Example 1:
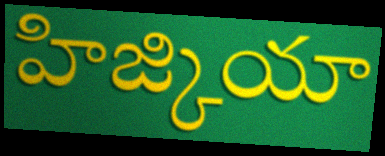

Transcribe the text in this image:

హిజ్కియా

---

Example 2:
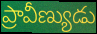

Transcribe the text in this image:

ప్రావీణ్యుడు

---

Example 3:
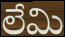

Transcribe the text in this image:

లేమి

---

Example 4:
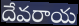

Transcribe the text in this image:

దేవరాయ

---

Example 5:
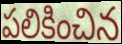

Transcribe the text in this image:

పలికించిన